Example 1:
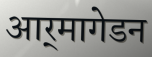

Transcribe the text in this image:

आर्मागेडन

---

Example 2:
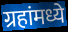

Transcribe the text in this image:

ग्रहांमध्ये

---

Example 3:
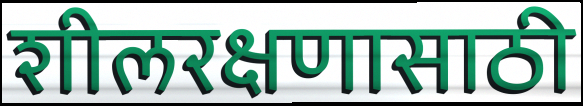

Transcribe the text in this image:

शीलरक्षणासाठी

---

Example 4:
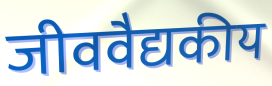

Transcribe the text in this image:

जीववैद्यकीय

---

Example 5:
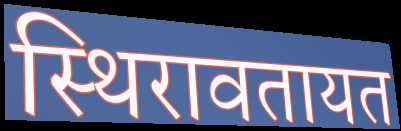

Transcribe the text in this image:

स्थिरावतायत